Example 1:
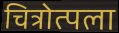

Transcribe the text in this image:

चित्रोत्पला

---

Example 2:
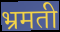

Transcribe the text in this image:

भ्रमती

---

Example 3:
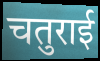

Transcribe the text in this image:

चतुराई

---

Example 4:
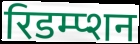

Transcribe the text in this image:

रिडम्प्शन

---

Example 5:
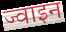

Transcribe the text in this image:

ज्वाइन